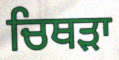
ਚਿਥੜਾ